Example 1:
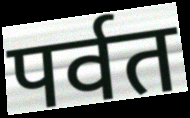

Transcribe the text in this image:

पर्वत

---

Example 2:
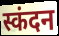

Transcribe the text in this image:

स्कंदन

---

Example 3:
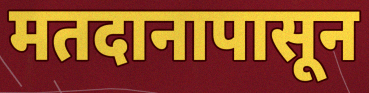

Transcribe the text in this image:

मतदानापासून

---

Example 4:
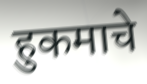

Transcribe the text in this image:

हुकमाचे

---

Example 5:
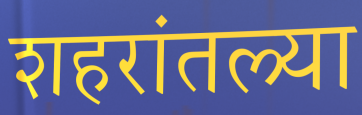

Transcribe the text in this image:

शहरांतल्या